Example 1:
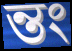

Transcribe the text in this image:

ন্তং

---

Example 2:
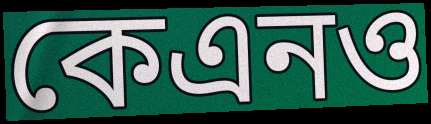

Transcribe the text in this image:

কেএনও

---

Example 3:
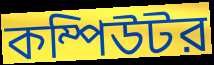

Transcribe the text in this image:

কম্পিউটর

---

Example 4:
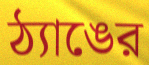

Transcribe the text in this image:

ঠ্যাঙের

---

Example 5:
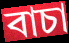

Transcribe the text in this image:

বাচা